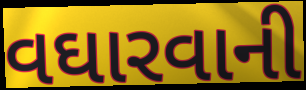
વઘારવાની